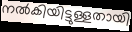
നൽകിയിട്ടുള്ളതായി